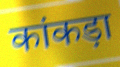
कांकड़ा